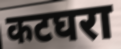
कटघरा